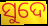
ସୁଦେ